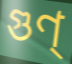
গুণ্